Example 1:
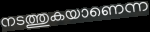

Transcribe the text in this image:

നടത്തുകയാണെന്ന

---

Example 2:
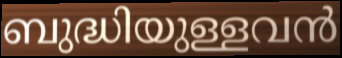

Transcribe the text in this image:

ബുദ്ധിയുള്ളവൻ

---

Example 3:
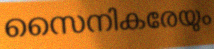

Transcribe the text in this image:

സൈനികരേയും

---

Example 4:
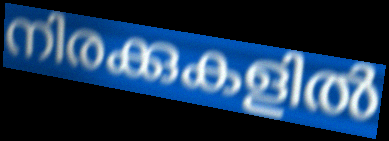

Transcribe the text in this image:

നിരക്കുകളിൽ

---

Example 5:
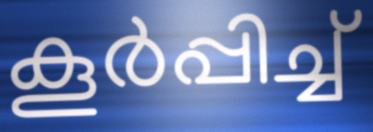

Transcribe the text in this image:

കൂർപ്പിച്ച്